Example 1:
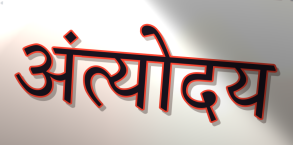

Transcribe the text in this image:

अंत्योदय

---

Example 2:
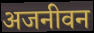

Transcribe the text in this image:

अजनीवन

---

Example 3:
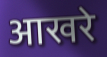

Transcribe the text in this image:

आखरे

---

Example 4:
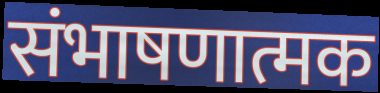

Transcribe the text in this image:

संभाषणात्मक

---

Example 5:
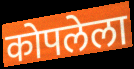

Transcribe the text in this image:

कोपलेला